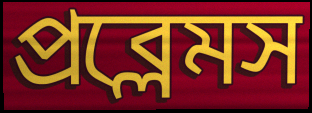
প্রব্লেমস